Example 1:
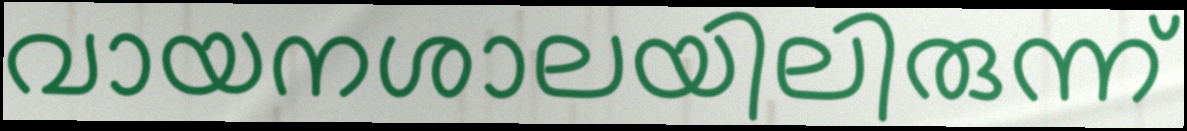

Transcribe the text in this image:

വായനശാലയിലിരുന്ന്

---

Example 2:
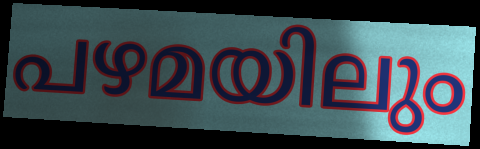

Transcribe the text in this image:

പഴമയിലും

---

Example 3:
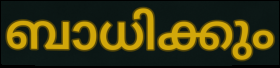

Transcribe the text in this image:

ബാധിക്കും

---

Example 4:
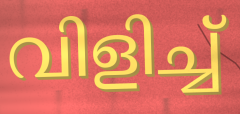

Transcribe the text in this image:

വിളിച്ച്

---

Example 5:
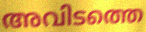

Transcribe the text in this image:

അവിടത്തെ